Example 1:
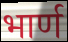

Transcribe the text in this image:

भार्ण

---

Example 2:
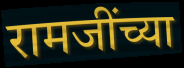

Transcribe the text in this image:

रामजींच्या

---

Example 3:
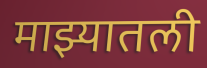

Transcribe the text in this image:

माझ्यातली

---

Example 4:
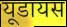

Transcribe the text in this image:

यूडायस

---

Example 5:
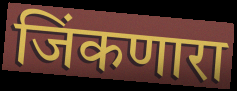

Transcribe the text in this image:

जिंकणारा